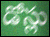
డోస్లు